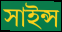
সাইন্স